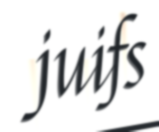
juifs